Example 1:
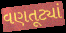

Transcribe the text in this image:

વણતૂટ્યાં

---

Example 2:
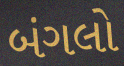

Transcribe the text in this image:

બંગલો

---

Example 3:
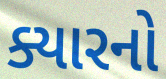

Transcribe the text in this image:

ક્યારનો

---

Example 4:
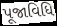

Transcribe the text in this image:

પૂજાવિધિ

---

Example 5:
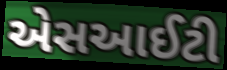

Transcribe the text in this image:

એસઆઈટી